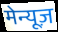
मेन्यूज़